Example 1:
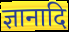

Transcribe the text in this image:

ज्ञानादि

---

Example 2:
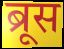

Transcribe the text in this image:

ब्रूस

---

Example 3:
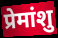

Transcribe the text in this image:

प्रेमांशु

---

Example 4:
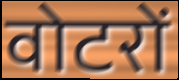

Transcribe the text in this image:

वोटरों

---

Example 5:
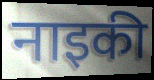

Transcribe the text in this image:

नाइकी